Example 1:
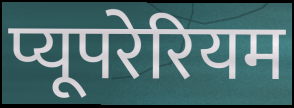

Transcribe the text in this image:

प्यूपरेरियम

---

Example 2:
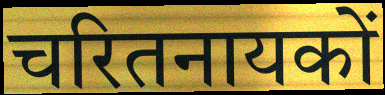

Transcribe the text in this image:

चरितनायकों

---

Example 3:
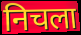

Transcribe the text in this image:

निचला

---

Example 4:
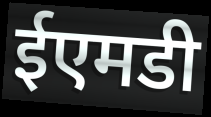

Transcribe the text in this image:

ईएमडी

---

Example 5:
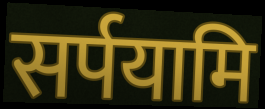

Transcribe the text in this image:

सर्पयामि